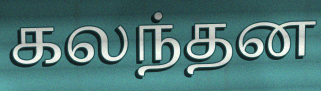
கலந்தன